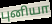
புனியா